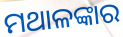
ମଥାଳଙ୍କାର